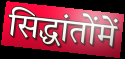
सिद्धांतोंमें